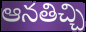
ఆనతిచ్చి